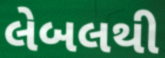
લેબલથી